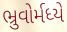
ભ્રુવોર્મધ્યે